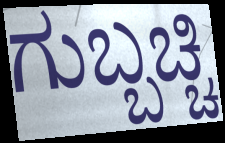
ಗುಬ್ಬಚ್ಚಿ